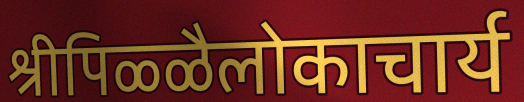
श्रीपिळ्ळैलोकाचार्य